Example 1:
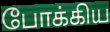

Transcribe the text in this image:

போக்கிய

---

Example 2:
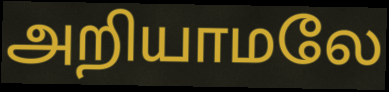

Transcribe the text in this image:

அறியாமலே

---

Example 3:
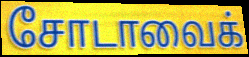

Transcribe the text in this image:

சோடாவைக்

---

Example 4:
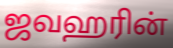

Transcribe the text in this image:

ஜவஹரின்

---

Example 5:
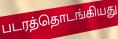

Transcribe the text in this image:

படரத்தொடங்கியது